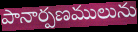
పానార్పణములును